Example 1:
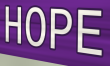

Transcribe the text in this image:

HOPE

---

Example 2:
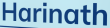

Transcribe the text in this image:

Harinath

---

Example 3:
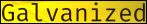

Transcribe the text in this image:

Galvanized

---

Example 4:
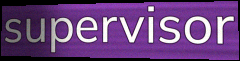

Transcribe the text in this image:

supervisor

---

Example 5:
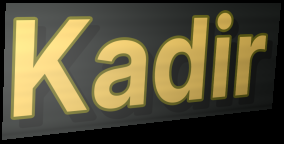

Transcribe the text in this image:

Kadir